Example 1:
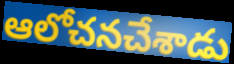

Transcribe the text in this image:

ఆలోచనచేశాడు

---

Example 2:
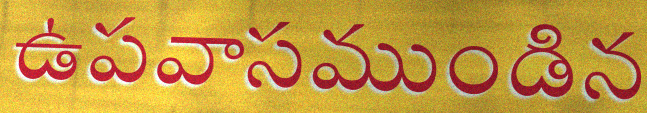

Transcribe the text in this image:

ఉపవాసముండిన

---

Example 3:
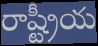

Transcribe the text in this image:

రాష్ట్రీయ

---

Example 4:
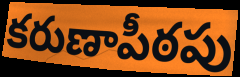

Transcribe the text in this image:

కరుణాపీఠపు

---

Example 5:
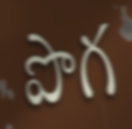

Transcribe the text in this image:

పొగ